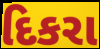
દિકરા